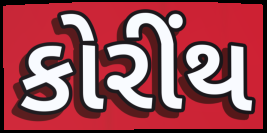
કોરીંથ